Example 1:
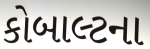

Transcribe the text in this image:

કોબાલ્ટના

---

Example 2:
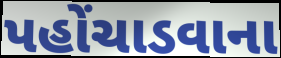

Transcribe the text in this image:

પહોંચાડવાના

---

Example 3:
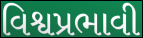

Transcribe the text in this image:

વિશ્વપ્રભાવી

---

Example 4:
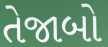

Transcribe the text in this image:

તેજાબો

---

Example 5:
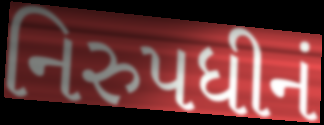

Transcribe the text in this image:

નિરુપધીનં